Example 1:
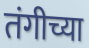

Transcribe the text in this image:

तंगीच्या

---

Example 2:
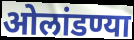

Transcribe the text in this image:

ओलांडण्या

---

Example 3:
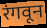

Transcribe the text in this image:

रंगवून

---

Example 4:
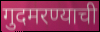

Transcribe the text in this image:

गुदमरण्याची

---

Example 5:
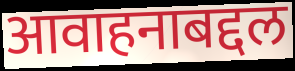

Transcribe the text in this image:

आवाहनाबद्दल